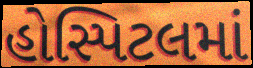
હોસ્પિટલમાં